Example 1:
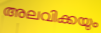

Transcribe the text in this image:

അലവിക്കയും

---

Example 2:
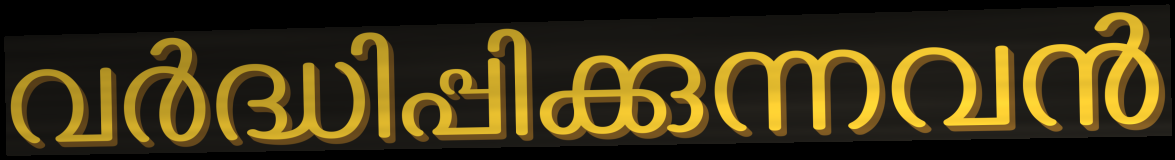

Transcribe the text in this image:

വർദ്ധിപ്പിക്കുന്നവൻ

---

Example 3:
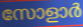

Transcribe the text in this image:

സോളാർ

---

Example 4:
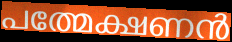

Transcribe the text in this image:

പത്മേക്ഷണൻ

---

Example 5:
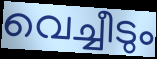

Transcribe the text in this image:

വെച്ചീടും